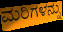
ಮರಿಗಳನ್ನು